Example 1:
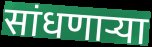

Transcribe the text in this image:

सांधणार्‍या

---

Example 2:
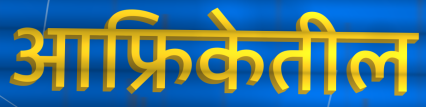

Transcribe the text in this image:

आफ्रिकेतील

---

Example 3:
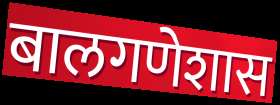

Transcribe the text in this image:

बालगणेशास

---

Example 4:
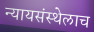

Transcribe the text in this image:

न्यायसंस्थेलाच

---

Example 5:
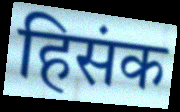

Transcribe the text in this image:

हिसंक